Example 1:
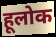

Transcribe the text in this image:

हूलोक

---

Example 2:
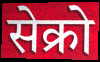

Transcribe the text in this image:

सेक्रो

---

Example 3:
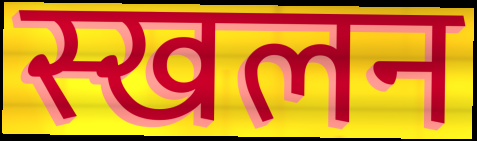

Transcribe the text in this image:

स्‍खलन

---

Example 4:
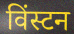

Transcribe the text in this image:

विंस्टन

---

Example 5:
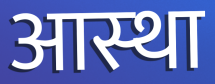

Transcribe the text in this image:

आस्‍था